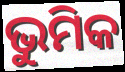
ଭୁମିକ